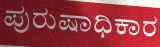
ಪುರುಷಾಧಿಕಾರ